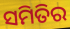
ସମିତିର